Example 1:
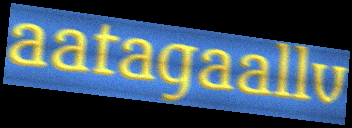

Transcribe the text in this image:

aatagaallu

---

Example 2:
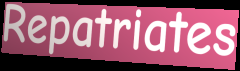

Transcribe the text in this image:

Repatriates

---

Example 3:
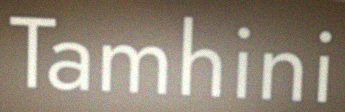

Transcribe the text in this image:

Tamhini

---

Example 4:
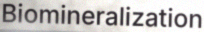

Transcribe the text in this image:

Biomineralization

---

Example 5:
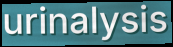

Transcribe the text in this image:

urinalysis